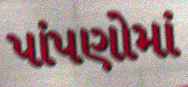
પાંપણોમાં